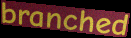
branched